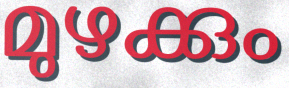
മുഴക്കും